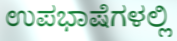
ಉಪಭಾಷೆಗಳಲ್ಲಿ